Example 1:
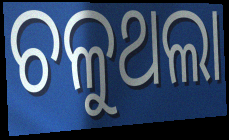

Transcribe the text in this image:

ଚଳୁଥଲା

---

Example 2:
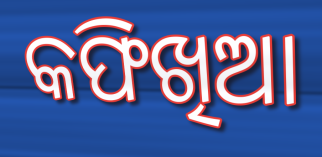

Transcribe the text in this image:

କଫିଖିଆ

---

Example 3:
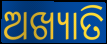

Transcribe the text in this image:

ଅଖ୍ୟାତି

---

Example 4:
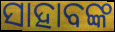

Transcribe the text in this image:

ସାହାବଙ୍କ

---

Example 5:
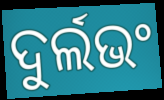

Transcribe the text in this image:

ଦୁର୍ଲଭଂ